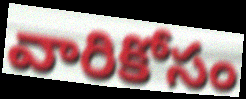
వారికోసం